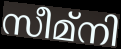
സീമ്നി